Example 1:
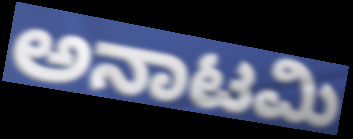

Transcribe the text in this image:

ಅನಾಟಮಿ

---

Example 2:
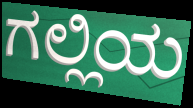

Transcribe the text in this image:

ಗಲ್ಲಿಯ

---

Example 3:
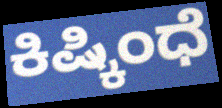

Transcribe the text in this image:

ಕಿಷ್ಕಿಂಧೆ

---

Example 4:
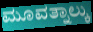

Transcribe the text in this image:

ಮೂವತ್ನಾಲ್ಕು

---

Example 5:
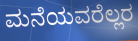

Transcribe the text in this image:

ಮನೆಯವರೆಲ್ಲರ